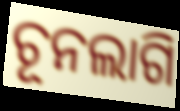
ଚୂନଲାଗି